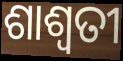
ଶାଶ୍ଵତୀ